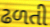
ઢળતી